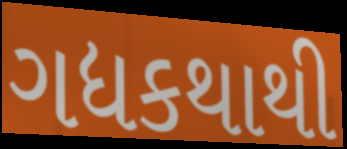
ગદ્યકથાથી